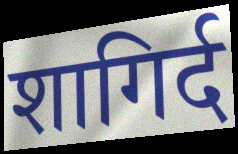
शागिर्द